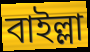
বাইল্লা